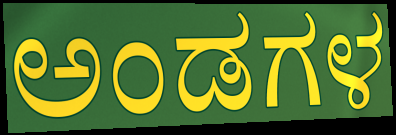
ಅಂಡಗಳ